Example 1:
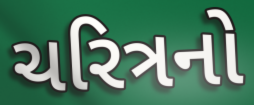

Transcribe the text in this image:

ચરિત્રનો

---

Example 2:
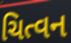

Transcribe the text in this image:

ચિત્વન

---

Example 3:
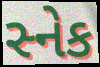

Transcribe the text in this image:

સ્નેક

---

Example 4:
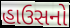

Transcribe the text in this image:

હાઉસનો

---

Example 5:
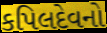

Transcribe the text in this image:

કપિલદેવનો